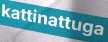
kattinattuga